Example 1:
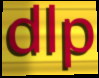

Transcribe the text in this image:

dlp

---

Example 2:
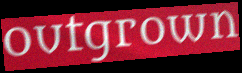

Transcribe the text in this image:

outgrown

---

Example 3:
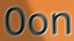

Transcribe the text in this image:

Oon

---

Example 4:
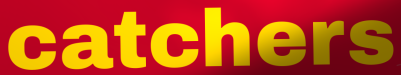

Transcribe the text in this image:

catchers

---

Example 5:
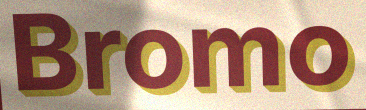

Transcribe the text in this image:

Bromo